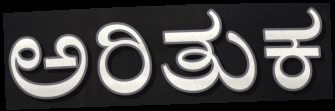
ಅರಿತುಕ